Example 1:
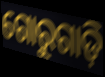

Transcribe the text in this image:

ଗୋରୁଗାଡ଼ି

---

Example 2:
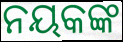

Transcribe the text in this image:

ନୟକଙ୍କ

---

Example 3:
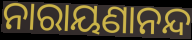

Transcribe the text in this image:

ନାରାୟଣାନନ୍ଦ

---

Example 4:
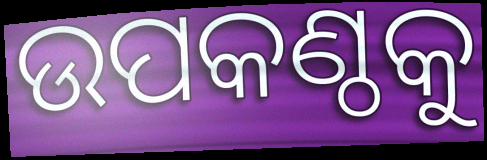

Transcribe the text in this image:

ଉପକଣ୍ଠକୁ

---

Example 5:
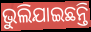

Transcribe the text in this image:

ଭୁଲିଯାଇଛନ୍ତି